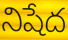
నిషేద